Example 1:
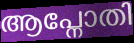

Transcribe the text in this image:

ആപ്നോതി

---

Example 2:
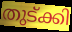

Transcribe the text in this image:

തുട്ക്കി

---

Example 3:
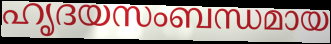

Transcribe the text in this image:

ഹൃദയസംബന്ധമായ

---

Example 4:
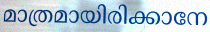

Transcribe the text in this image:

മാത്രമായിരിക്കാനേ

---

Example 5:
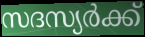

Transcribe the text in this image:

സദസ്യർക്ക്